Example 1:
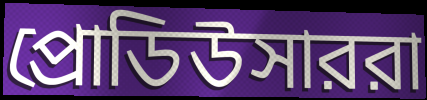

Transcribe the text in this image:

প্রোডিউসাররা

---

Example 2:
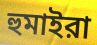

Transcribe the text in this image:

হুমাইরা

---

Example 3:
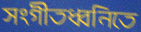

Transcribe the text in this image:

সংগীতধ্বনিতে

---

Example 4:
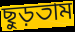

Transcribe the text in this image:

ছুড়তাম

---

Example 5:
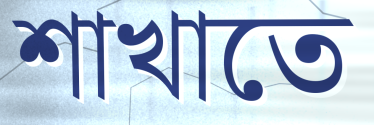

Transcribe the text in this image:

শাখাতে